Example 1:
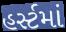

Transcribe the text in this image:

હર્સ્ટમાં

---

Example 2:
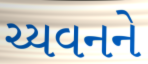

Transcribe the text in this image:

ચ્યવનને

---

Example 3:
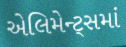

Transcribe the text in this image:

એલિમેન્ટ્સમાં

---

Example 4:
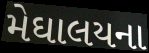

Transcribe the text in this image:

મેઘાલયના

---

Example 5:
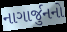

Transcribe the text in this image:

નાગાર્જુનનો